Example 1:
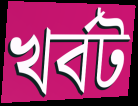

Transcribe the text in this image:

খর্বট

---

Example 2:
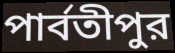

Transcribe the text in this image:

পার্বতীপুর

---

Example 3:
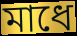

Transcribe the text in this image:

মাধে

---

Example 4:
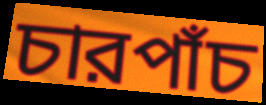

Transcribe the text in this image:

চারপাঁচ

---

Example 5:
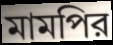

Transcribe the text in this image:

মামপির